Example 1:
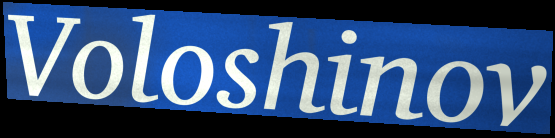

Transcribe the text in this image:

Voloshinov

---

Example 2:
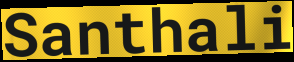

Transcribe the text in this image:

Santhali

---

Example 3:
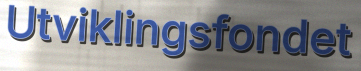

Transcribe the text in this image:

Utviklingsfondet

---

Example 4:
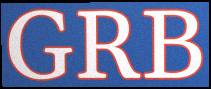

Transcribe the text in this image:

GRB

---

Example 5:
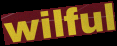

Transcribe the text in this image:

wilful